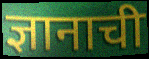
ज्ञानाची